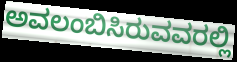
ಅವಲಂಬಿಸಿರುವವರಲ್ಲಿ